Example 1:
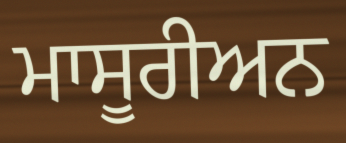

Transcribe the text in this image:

ਮਾਸੂਰੀਅਨ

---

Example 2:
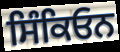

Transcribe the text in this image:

ਸਿੰਕਿਓਨ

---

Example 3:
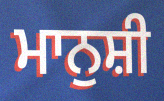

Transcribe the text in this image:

ਮਾਨੁਸ਼ੀ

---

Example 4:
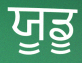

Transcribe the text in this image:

ਯੂਡੂ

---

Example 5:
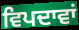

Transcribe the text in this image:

ਵਿਪਦਾਵਾਂ